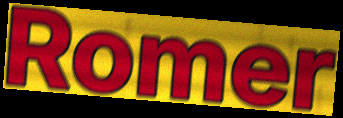
Romer